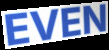
EVEN